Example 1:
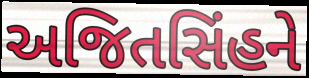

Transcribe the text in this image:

અજિતસિંહને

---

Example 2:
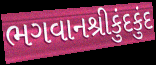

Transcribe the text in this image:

ભગવાનશ્રીકુંદકુંદ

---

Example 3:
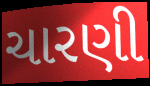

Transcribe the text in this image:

ચારણી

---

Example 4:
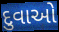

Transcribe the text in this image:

દુવાઓ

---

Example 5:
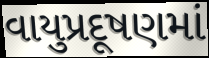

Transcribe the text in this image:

વાયુપ્રદૂષણમાં